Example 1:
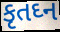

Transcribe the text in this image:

કૃતઘ્ન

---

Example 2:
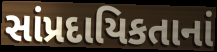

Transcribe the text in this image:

સાંપ્રદાયિકતાનાં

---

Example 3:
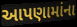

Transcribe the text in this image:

આપણામાંના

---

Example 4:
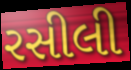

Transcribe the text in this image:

રસીલી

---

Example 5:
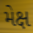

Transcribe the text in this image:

મેક્ષ